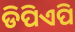
ଡିପିଏପି